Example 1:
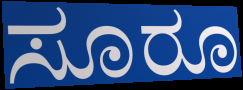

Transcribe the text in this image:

ಸೂರೂ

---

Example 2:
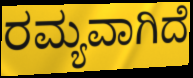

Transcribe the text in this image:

ರಮ್ಯವಾಗಿದೆ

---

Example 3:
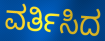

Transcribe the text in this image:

ವರ್ತಿಸಿದ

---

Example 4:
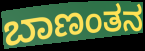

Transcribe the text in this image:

ಬಾಣಂತನ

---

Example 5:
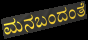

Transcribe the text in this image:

ಮನಬಂದಂತೆ